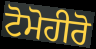
ਟੋਮੋਹੀਰੋ